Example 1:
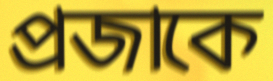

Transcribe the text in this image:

প্রজাকে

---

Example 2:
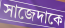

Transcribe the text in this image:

সাজেদাকে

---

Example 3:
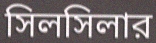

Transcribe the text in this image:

সিলসিলার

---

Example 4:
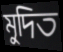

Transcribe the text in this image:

মুদিত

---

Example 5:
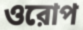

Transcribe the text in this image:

ওরোপ